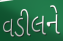
વડીલને